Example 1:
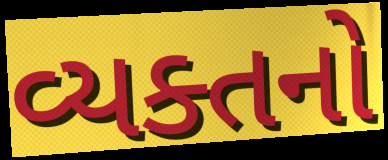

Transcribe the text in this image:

વ્યક્તનો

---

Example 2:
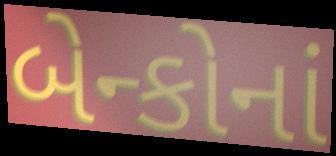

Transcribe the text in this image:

બેન્કોનાં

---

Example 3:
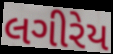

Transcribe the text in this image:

લગીરેય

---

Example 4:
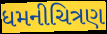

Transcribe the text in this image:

ધમનીચિત્રણ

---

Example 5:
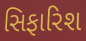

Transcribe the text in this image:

સિફારિશ